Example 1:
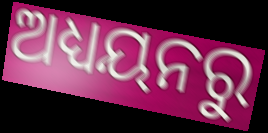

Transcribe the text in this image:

ଅଧ୍ୟୟନରୁ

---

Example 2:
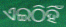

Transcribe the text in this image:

ଏଇଠିହିଁ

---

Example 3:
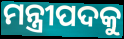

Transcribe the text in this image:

ମନ୍ତ୍ରୀପଦକୁ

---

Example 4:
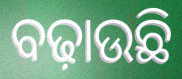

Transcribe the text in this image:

ବଢ଼ାଉଛି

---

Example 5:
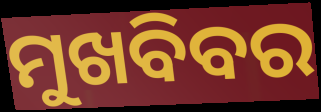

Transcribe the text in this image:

ମୁଖବିବର